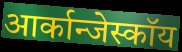
आर्कान्जेस्कॉय